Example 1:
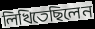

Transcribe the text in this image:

লিখিতেছিলেন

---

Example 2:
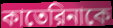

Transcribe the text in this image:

কাতেরিনাকে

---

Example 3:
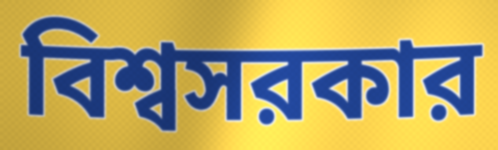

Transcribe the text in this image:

বিশ্বসরকার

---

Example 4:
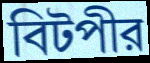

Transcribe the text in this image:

বিটপীর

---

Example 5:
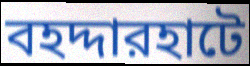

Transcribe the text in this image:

বহদ্দারহাটে